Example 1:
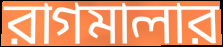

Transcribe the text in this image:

রাগমালার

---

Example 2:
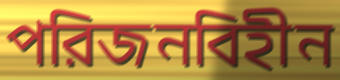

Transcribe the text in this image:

পরিজনবিহীন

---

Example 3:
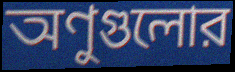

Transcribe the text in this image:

অণুগুলোর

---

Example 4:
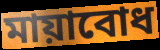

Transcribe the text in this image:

মায়াবোধ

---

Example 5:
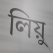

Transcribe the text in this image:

লিয়ু